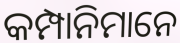
କମ୍ପାନିମାନେ